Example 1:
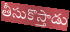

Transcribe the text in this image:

తీసుకొస్తాడు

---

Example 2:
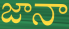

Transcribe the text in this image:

జానా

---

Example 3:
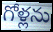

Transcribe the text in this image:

గోళ్లను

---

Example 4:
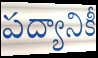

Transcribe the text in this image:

పద్యానికీ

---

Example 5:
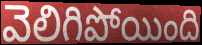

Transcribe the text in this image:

వెలిగిపోయింది